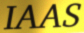
IAAS